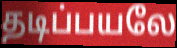
தடிப்பயலே